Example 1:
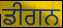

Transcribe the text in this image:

ਡੀਗਨ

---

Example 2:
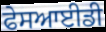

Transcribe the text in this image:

ਫੇਸਆਈਡੀ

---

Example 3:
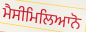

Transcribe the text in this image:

ਮੈਸੀਮਿਲਿਆਨੋ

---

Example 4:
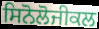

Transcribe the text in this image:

ਸਿਨੋਲੋਜੀਕਲ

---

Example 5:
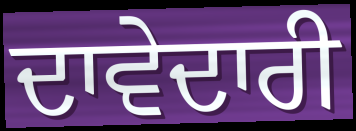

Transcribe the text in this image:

ਦਾਵੇਦਾਰੀ